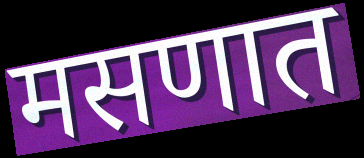
मसणात